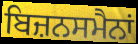
ਬਿਜ਼ਨਸਮੈਨਾਂ